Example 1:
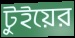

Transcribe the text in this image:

টুইয়ের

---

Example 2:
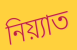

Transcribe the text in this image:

নিয়্যাত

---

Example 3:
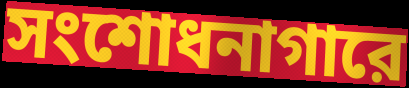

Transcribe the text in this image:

সংশোধনাগারে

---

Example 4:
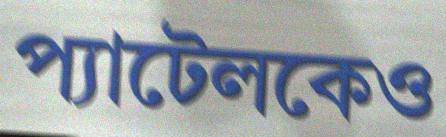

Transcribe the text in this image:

প্যাটেলকেও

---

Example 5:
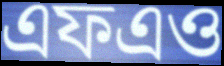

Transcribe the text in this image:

এফএও